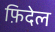
फ़िदेल